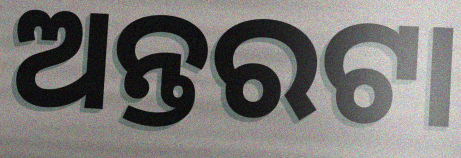
ଅନ୍ତରଟା